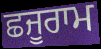
ਛਜੂਰਾਮ